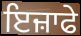
ਇਜ਼ਾਫੇ